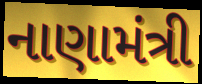
નાણામંત્રી